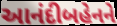
આનંદીબહેનને